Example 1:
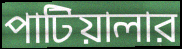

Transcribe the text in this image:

পাটিয়ালার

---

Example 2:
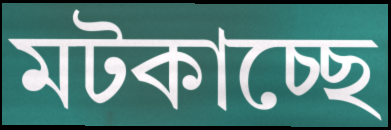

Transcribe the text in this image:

মটকাচ্ছে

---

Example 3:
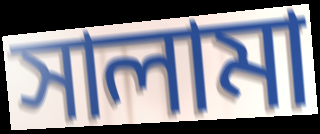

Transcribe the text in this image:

সালামা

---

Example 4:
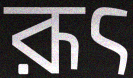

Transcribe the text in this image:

রূৎ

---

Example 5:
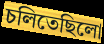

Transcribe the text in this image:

চলিতেছিলো